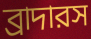
ব্রাদারস